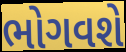
ભોગવશે